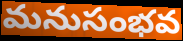
మనుసంభవ